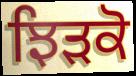
ਝਿੜਕੋ